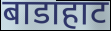
बाडाहाट